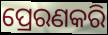
ପ୍ରେରଣକରି